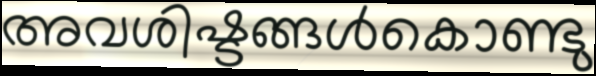
അവശിഷ്ടങ്ങൾകൊണ്ടു